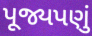
પૂજ્યપણું